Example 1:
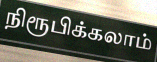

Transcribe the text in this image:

நிரூபிக்கலாம்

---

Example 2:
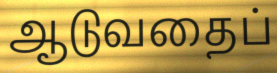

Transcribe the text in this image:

ஆடுவதைப்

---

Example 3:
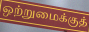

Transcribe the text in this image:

ஒற்றுமைக்குத்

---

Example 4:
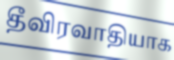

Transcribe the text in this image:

தீவிரவாதியாக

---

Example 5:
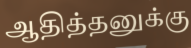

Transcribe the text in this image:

ஆதித்தனுக்கு